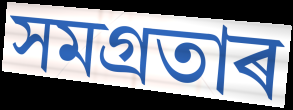
সমগ্ৰতাৰ